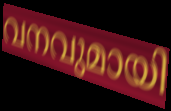
വനവുമായി